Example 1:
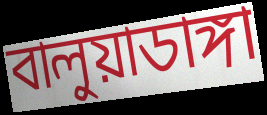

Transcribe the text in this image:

বালুয়াডাঙ্গা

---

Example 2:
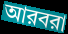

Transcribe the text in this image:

আরবরা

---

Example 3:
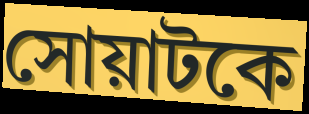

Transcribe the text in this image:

সোয়াটকে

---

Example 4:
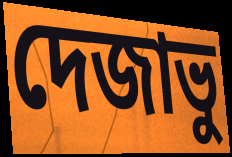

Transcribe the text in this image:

দেজাভু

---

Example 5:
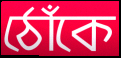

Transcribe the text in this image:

ঠোঁকে